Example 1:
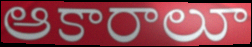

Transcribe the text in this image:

ఆకారాలూ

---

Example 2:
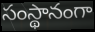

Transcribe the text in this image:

సంస్థానంగా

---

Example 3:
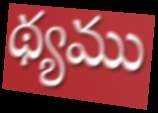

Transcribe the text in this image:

థ్యము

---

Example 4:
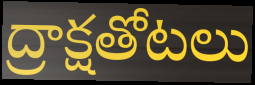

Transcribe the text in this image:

ద్రాక్షతోటలు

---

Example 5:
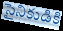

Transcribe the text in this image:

సైనికుడికి